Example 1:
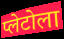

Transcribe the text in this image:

प्लेटोला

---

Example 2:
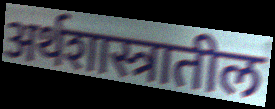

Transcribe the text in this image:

अर्थशास्त्रातील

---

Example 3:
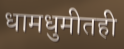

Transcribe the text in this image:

धामधुमीतही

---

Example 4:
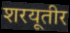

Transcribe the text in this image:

शरयूतीर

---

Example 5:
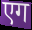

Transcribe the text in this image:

एग